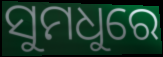
ସୁମଧୁରେ